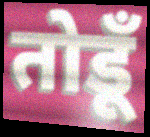
तोडूँ